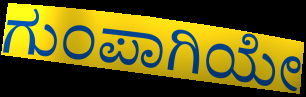
ಗುಂಪಾಗಿಯೇ